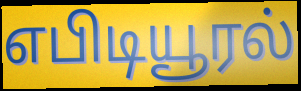
எபிடியூரல்